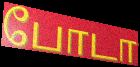
போடா